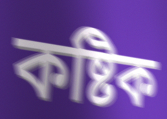
কষ্টিক